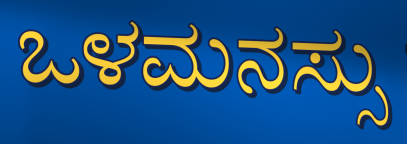
ಒಳಮನಸ್ಸು